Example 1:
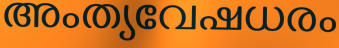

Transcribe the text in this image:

അംത്യവേഷധരം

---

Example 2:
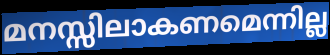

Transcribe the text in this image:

മനസ്സിലാകണമെന്നില്ല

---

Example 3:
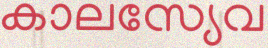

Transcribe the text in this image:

കാലസ്യേവ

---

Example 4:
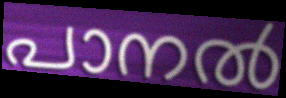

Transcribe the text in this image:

പാനൽ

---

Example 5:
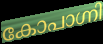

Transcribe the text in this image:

കോപാഗ്നി